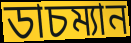
ডাচম্যান